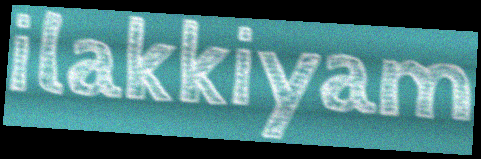
ilakkiyam